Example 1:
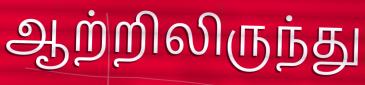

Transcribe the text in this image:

ஆற்றிலிருந்து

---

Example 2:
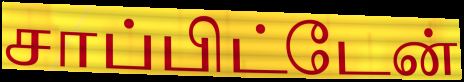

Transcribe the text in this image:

சாப்பிட்டேன்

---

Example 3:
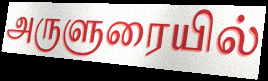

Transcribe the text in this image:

அருளுரையில்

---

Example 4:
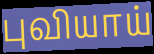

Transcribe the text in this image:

புவியாய்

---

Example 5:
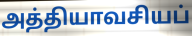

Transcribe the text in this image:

அத்தியாவசியப்